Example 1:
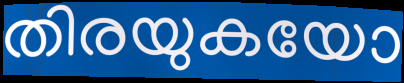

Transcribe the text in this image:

തിരയുകയോ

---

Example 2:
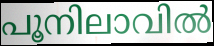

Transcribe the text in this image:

പൂനിലാവിൽ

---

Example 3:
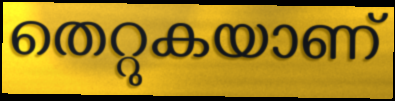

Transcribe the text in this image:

തെറ്റുകയാണ്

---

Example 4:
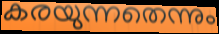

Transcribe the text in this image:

കരയുന്നതെന്നും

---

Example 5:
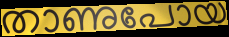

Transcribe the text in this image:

താണുപോയ